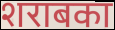
शराबका